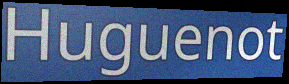
Huguenot